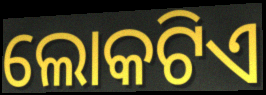
ଲୋକଟିଏ